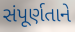
સંપૂર્ણતાને